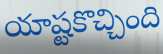
యాష్టకొచ్చింది